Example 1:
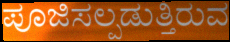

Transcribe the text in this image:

ಪೂಜಿಸಲ್ಪಡುತ್ತಿರುವ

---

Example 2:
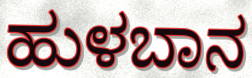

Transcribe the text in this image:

ಹುಳಬಾನ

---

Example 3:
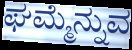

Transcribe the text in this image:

ಘಮ್ಮೆನ್ನುವ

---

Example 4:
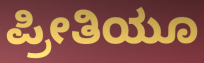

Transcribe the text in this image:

ಪ್ರೀತಿಯೂ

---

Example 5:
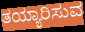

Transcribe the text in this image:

ತಯ್ಯಾರಿಸುವ